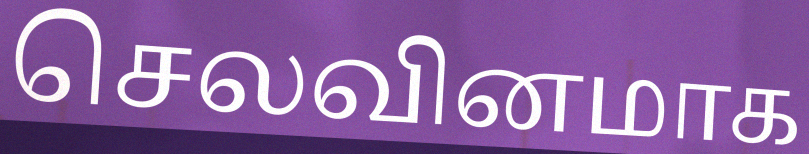
செலவினமாக